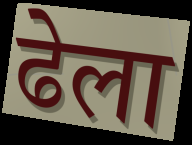
ढेला